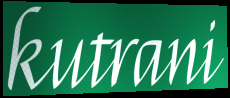
kutrani